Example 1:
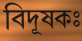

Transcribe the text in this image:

বিদূষকঃ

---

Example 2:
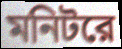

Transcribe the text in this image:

মনিটরে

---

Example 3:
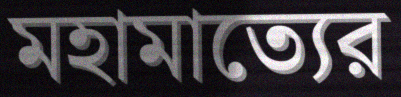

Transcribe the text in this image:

মহামাত্যের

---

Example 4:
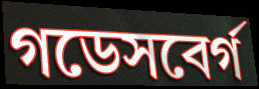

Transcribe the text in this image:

গডেসবের্গ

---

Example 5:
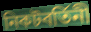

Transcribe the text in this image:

নিকটবর্তিনী